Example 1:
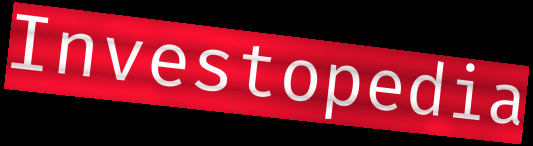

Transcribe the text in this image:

Investopedia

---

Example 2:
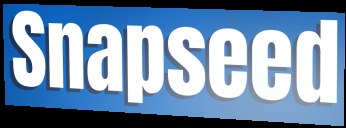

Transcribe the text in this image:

Snapseed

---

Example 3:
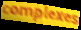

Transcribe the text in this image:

complexes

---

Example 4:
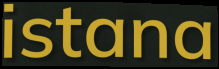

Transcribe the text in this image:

istana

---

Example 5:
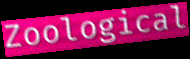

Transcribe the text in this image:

Zoological